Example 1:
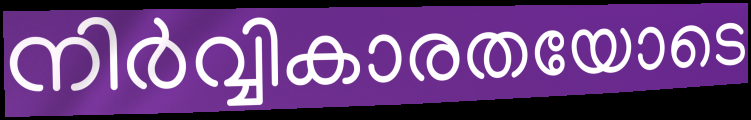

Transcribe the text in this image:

നിർവ്വികാരതയോടെ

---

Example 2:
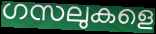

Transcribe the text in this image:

ഗസലുകളെ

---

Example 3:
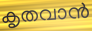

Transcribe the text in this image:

കൃതവാൻ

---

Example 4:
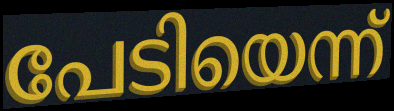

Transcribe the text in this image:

പേടിയെന്ന്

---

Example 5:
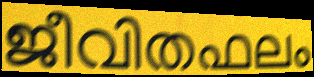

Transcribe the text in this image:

ജീവിതഫലം